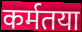
कर्मतया